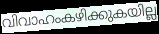
വിവാഹംകഴിക്കുകയില്ല